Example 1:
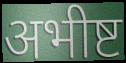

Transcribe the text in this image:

अभीष्ट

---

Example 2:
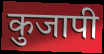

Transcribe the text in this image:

कुजापी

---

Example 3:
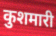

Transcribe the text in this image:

कुशमारी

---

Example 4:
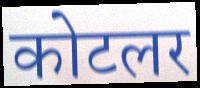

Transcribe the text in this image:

कोटलर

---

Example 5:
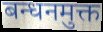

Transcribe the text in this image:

बन्धनमुक्त